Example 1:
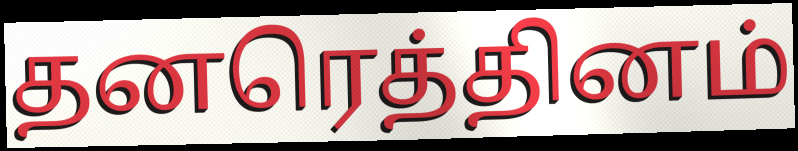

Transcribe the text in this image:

தனரெத்தினம்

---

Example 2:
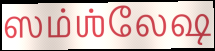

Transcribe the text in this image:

ஸம்ஶ்லேஷ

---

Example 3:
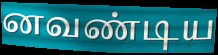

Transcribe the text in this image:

னவண்டிய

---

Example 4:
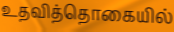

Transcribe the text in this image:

உதவித்தொகையில்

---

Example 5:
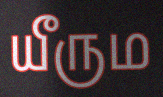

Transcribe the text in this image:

யீரும